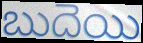
బుదెయి